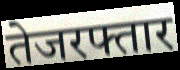
तेजरफ्तार